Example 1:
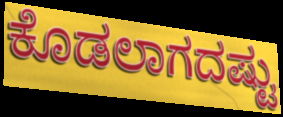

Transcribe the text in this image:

ಕೊಡಲಾಗದಷ್ಟು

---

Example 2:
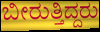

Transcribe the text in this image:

ಬೀರುತ್ತಿದ್ದರು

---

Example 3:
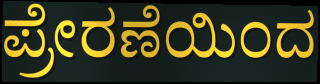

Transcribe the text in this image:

ಪ್ರೇರಣೆಯಿಂದ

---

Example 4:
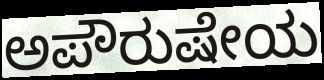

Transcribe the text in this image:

ಅಪೌರುಷೇಯ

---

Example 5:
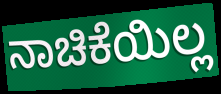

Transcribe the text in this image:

ನಾಚಿಕೆಯಿಲ್ಲ